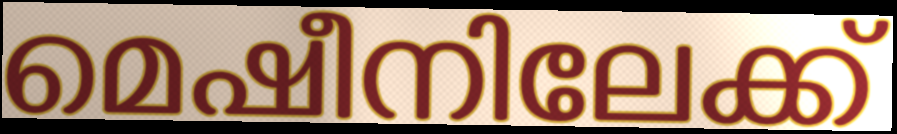
മെഷീനിലേക്ക്